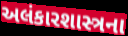
અલંકારશાસ્ત્રના